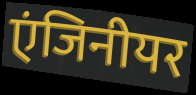
एंजिनीयर